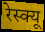
रेस्क्यू